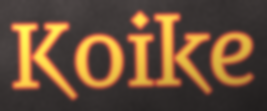
Koike